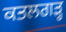
ਕਤਲਗੜ੍ਹ